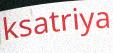
ksatriya